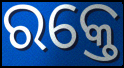
ରକ୍ତେ